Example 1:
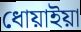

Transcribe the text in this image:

ধোয়াইয়া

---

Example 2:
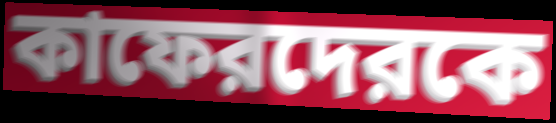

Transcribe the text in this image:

কাফেরদেরকে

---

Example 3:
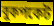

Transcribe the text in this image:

বুকপকেট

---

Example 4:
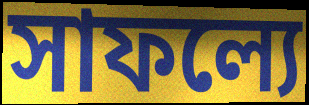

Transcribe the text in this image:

সাফল্যে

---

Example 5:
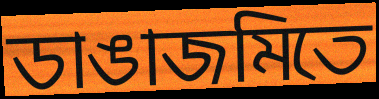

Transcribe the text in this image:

ডাঙাজমিতে